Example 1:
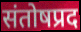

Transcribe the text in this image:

संतोषप्रद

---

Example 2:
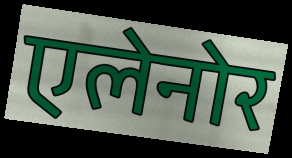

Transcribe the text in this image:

एलेनोर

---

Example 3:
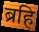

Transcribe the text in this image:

ब्रहि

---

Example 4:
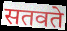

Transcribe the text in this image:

सतवते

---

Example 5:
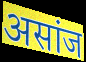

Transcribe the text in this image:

असांज